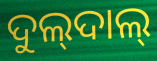
ଦୁଲ୍‍ଦାଲ୍